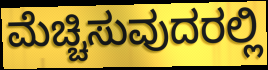
ಮೆಚ್ಚಿಸುವುದರಲ್ಲಿ